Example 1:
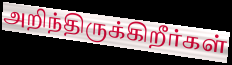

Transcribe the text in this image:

அறிந்திருக்கிறீர்கள்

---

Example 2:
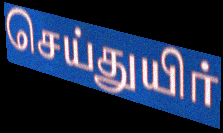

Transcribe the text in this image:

செய்துயிர்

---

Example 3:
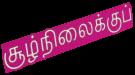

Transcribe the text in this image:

சூழ்நிலைக்குப்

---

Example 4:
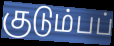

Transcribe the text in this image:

குடும்பப்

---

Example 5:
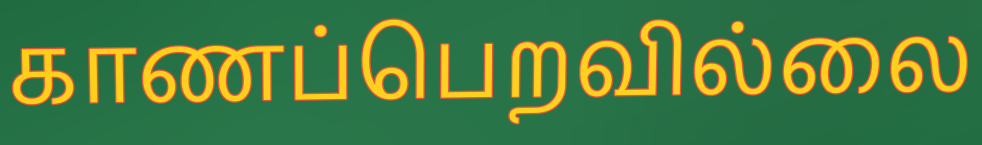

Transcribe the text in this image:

காணப்பெறவில்லை